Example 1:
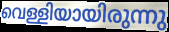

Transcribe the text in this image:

വെള്ളിയായിരുന്നു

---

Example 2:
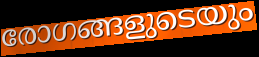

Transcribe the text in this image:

രോഗങ്ങളുടെയും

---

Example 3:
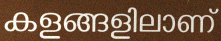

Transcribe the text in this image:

കളങ്ങളിലാണ്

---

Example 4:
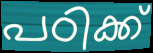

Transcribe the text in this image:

പഠിക്ക്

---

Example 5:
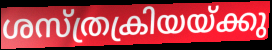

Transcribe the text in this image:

ശസ്ത്രക്രിയയ്ക്കു